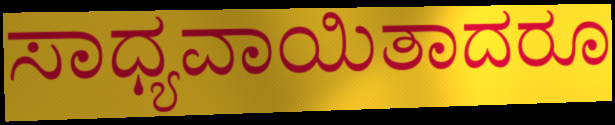
ಸಾಧ್ಯವಾಯಿತಾದರೂ